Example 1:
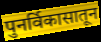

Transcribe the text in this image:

पुनर्विकासातून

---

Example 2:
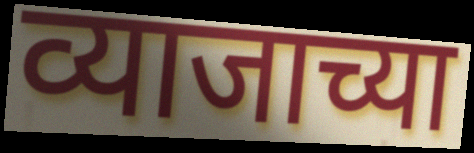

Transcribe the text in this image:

व्याजाच्या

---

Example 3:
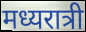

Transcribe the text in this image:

मध्यरात्री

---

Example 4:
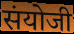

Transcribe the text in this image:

संयोजी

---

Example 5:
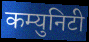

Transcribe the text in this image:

कम्युनिटी